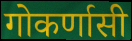
गोकर्णासी